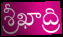
శ్రీఖాద్రి